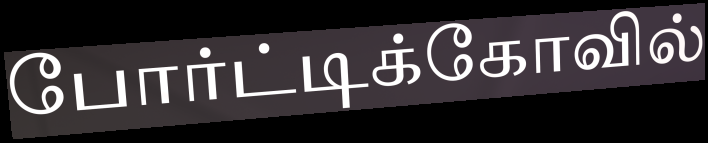
போர்ட்டிக்கோவில்